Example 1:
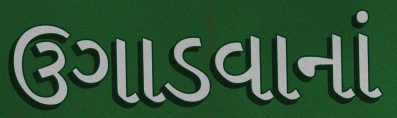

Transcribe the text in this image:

ઉગાડવાનાં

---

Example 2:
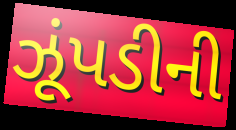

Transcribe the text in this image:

ઝૂંપડીની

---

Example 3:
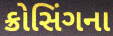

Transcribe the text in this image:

ક્રોસિંગના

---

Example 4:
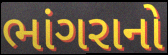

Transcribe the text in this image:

ભાંગરાનો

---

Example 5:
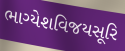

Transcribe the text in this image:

ભાગ્યેશવિજયસૂરિ